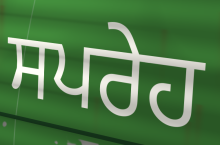
ਸਪਰੇਹ